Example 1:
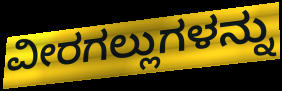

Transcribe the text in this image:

ವೀರಗಲ್ಲುಗಳನ್ನು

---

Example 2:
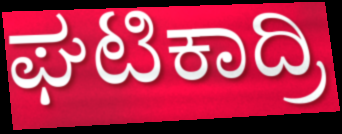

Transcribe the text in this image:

ಘಟಿಕಾದ್ರಿ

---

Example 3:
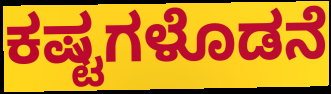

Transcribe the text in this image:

ಕಷ್ಟಗಳೊಡನೆ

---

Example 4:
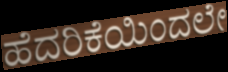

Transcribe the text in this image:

ಹೆದರಿಕೆಯಿಂದಲೇ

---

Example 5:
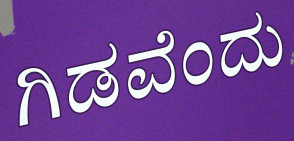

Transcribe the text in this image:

ಗಿಡವೆಂದು